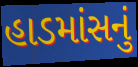
હાડમાંસનું